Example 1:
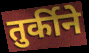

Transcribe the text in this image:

तुर्कीने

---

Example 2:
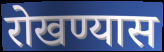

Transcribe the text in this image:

रोखण्यास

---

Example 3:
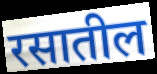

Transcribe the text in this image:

रसातील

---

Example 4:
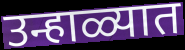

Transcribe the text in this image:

उन्हाळ्यात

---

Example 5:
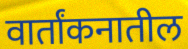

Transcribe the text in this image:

वार्तांकनातील